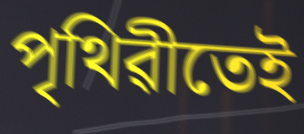
পৃথিৱীতেই